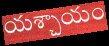
యశ్చాయం